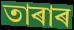
তাৰাৰ